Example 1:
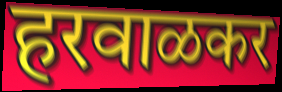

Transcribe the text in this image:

हरवाळकर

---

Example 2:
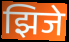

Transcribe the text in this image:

झिजे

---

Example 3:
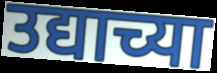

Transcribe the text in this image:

उद्याच्या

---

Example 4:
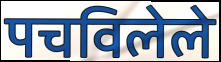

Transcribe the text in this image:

पचविलेले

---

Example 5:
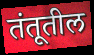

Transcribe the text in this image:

तंतूतील